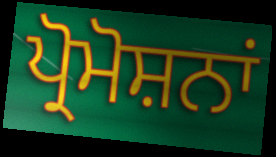
ਪ੍ਰੋਮੋਸ਼ਨਾਂ